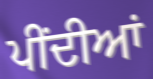
ਪੀਂਦੀਆਂ